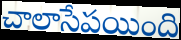
చాలాసేపయింది